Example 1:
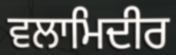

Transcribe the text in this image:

ਵਲਾਮਿਦੀਰ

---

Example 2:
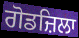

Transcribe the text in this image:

ਗੋਡਜ਼ਿਲਾ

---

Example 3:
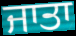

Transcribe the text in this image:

ਜਾਤਾ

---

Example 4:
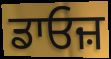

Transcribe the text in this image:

ਡਾਓਜ਼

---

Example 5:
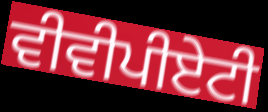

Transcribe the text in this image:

ਵੀਵੀਪੀਏਟੀ